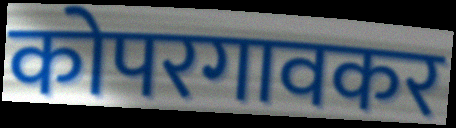
कोपरगावकर